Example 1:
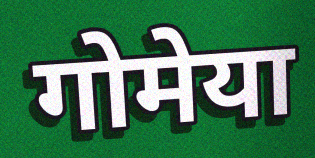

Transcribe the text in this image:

गोमेया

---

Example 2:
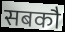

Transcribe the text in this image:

सबकौ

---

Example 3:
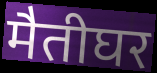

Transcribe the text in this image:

मैतीघर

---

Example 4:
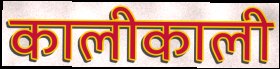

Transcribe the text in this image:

कालीकाली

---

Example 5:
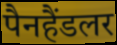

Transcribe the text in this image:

पैनहैंडलर